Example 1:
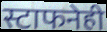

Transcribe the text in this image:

स्टाफनेही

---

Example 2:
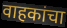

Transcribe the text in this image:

वाहकांचा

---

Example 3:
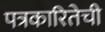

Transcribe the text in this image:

पत्रकारितेची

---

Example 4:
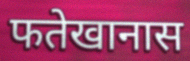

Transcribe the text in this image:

फतेखानास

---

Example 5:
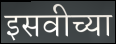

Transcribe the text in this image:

इसवीच्या